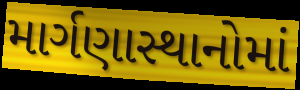
માર્ગણાસ્થાનોમાં